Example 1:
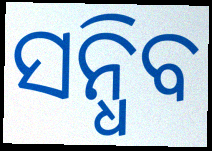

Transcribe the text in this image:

ସନ୍ଧିବ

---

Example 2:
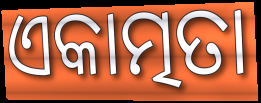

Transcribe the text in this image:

ଏକାତ୍ମତା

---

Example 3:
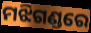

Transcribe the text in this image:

ମଝିଗଣ୍ଡରେ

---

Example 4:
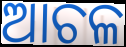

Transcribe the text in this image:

ଆଚଳ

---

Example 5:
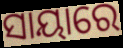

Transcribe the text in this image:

ସାୟାରେ